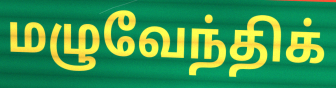
மழுவேந்திக்